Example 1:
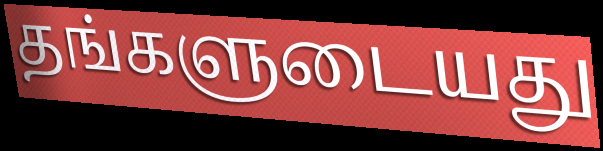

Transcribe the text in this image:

தங்களுடையது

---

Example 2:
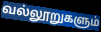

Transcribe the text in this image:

வல்லூறுகளும்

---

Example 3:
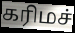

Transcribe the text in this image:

கரிமச்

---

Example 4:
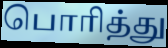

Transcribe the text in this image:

பொரித்து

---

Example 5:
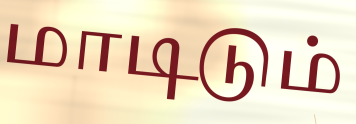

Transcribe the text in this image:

மாடிடும்